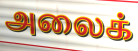
அலைக்